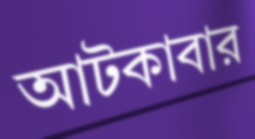
আটকাবার